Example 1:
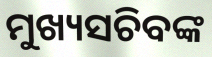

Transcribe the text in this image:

ମୁଖ୍ୟସଚିବଙ୍କ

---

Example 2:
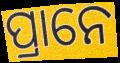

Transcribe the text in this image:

ପ୍ରାନେ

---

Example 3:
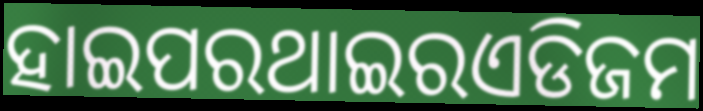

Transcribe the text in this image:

ହାଇପରଥାଇରଏଡିଜମ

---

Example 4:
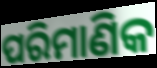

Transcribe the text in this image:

ପରିମାଣିକ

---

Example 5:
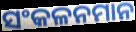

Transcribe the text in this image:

ସଂକଳନମାନ